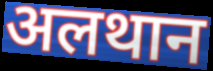
अलथान